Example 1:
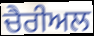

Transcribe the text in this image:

ਚੈਰੀਅਲ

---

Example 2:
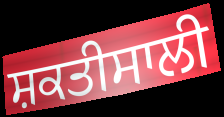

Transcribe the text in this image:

ਸ਼ਕਤੀਸਾਲੀ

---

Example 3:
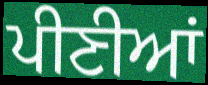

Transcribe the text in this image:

ਪੀਣੀਆਂ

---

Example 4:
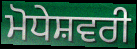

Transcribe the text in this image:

ਮੋਧੇਸ਼ਵਰੀ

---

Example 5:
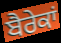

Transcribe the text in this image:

ਬੈਰੇਕਾਂ